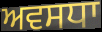
ਅਵਸਧਾ